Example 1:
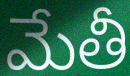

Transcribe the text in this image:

మేతీ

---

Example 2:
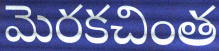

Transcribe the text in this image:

మెరకచింత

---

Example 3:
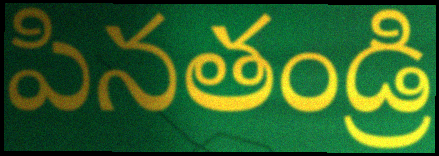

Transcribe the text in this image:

పినతండ్రి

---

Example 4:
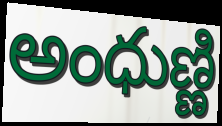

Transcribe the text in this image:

అంధుణ్ణి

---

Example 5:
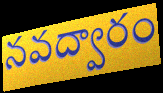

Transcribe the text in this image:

నవద్వారం